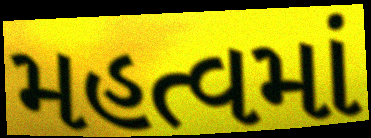
મહત્વમાં